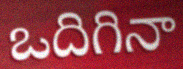
ఒదిగినా